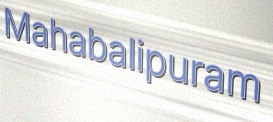
Mahabalipuram